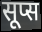
सूप्स